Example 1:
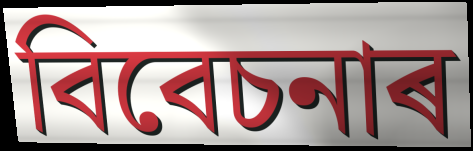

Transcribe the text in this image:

বিবেচনাৰ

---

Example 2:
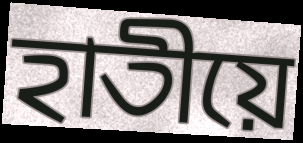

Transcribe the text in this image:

হাতীয়ে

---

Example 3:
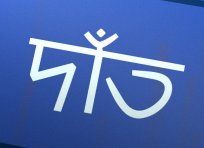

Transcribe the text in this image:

দাঁত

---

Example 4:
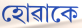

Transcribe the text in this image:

হোৱাকে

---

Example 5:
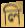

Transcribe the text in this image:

লি